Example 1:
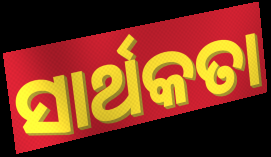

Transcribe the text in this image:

ସାର୍ଥକତା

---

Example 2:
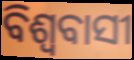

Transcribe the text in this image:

ବିଶ୍ୱବାସୀ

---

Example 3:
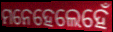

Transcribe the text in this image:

ମନେହେଲେହେଁ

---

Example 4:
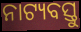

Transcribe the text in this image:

ନାଟ୍ୟବସ୍ତୁ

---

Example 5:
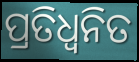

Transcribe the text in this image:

ପ୍ରତିଧ୍ଵନିତ